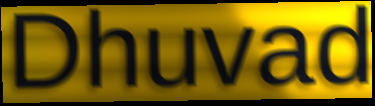
Dhuvad